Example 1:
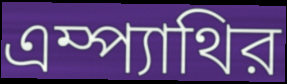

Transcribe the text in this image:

এম্প্যাথির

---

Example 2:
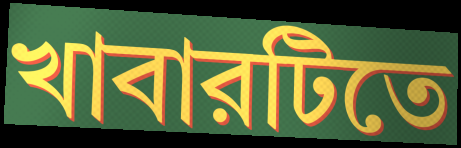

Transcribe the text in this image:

খাবারটিতে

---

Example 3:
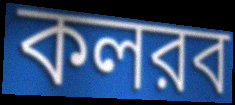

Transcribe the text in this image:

কলরব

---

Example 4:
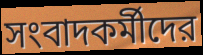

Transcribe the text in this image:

সংবাদকর্মীদের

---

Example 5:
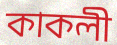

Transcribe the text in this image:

কাকলী